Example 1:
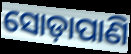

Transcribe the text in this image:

ସୋଡ଼ାପାଣି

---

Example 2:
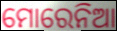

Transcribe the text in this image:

ମୋରେନିଆ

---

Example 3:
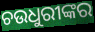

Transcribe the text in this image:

ଚଉଧୁରୀଙ୍କର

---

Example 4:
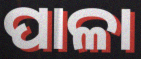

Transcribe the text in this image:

ପାଳା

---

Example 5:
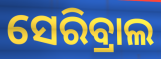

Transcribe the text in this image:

ସେରିବ୍ରାଲ